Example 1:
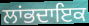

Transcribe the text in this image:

ਲਾਂਭਦਾਇਕ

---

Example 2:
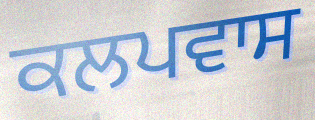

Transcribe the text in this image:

ਕਲਪਵਾਸ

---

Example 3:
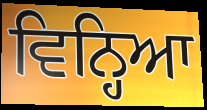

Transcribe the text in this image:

ਵਿਨ੍ਹਿਆ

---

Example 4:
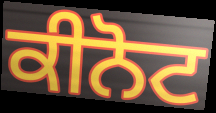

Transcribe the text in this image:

ਕੀਨੋਟ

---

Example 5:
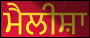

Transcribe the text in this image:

ਮੈਲੀਸ਼ਾ